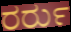
ರರ್ರು